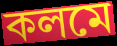
কলমে